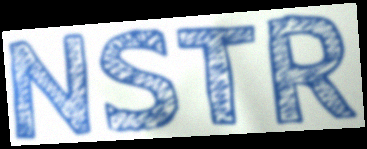
NSTR